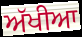
ਅੱਖੀਆ